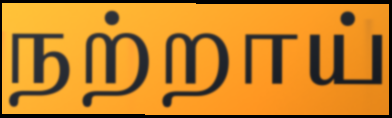
நற்றாய்